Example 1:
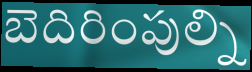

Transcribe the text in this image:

బెదిరింపుల్ని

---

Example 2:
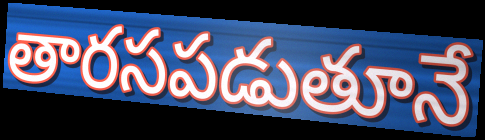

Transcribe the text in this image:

తారసపడుతూనే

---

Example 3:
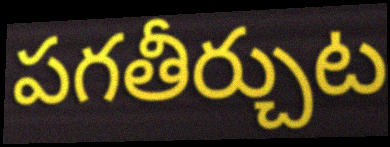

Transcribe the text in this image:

పగతీర్చుట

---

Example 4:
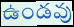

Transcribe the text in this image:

ఉండవు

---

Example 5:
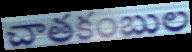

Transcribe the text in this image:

చాతకంబుల